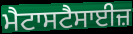
ਮੈਟਾਸਟੈਸਾਈਜ਼